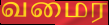
வமைர